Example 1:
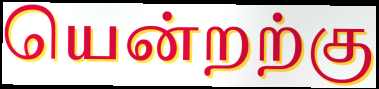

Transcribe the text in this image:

யென்றற்கு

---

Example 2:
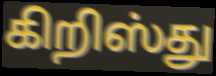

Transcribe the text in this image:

கிறிஸ்து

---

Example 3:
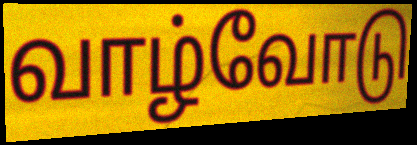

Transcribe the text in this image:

வாழ்வோடு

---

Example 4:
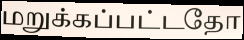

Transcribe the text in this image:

மறுக்கப்பட்டதோ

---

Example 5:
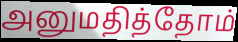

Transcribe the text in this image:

அனுமதித்தோம்